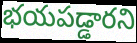
భయపడ్డారని